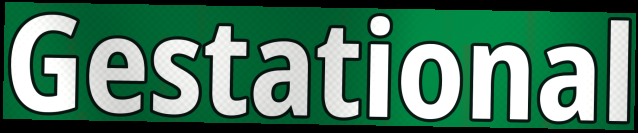
Gestational